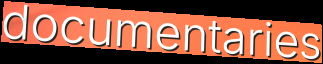
documentaries